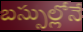
బస్సుల్లోనే